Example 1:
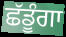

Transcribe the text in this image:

ਛੱਡੂੰਗਾ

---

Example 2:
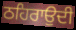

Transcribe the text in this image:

ਠਹਿਰਾਉਦੀ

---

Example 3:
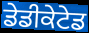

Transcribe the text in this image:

ਡੇਡੀਕੇਟੇਡ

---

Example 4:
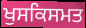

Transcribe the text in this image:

ਖੁਸਕਿਸਮਤ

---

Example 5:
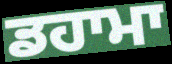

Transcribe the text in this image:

ਡਹਾਮਾ